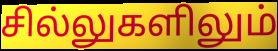
சில்லுகளிலும்